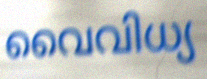
വൈവിധ്യ